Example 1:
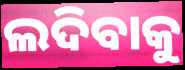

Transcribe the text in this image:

ଲଦିବାକୁ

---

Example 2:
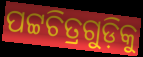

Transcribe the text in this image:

ପଟ୍ଟଚିତ୍ରଗୁଡ଼ିକୁ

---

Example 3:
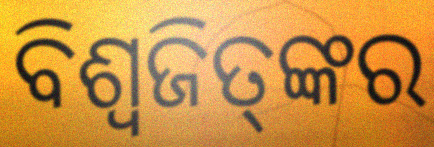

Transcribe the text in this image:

ବିଶ୍ଵଜିତ୍‌ଙ୍କର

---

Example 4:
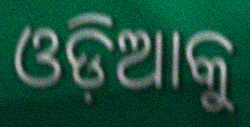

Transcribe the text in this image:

ଓଡ଼ିଆକୁ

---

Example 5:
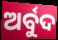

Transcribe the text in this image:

ଅର୍ବୁଦ